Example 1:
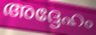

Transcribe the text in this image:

അദ്ദേഹം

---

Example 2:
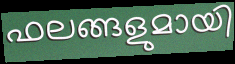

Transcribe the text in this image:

ഫലങ്ങളുമായി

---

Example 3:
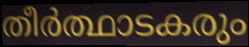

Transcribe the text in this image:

തീർത്ഥാടകരും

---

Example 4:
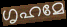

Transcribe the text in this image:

ഗൃഹമേ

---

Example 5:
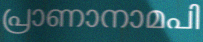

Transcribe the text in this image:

പ്രാണാനാമപി